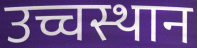
उच्चस्थान